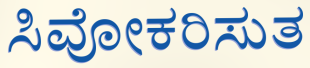
ಸಿವೋಕರಿಸುತ